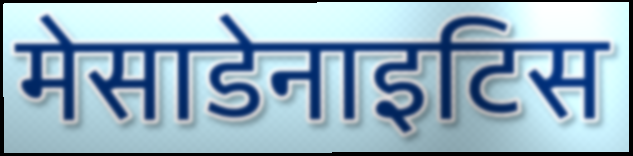
मेसाडेनाइटिस